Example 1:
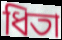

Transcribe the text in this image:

ধিতা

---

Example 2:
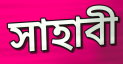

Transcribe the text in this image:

সাহাবী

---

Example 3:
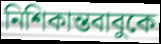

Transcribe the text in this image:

নিশিকান্তবাবুকে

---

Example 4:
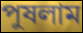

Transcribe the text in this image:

পুষলাম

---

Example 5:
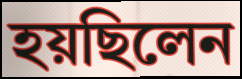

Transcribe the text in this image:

হয়ছিলেন